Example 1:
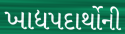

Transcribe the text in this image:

ખાદ્યપદાર્થોની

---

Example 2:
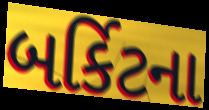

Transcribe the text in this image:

બર્કિટના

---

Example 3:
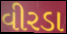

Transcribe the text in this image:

વીરડા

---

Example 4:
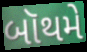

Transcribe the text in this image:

બૉથમે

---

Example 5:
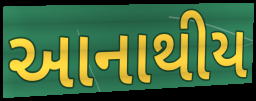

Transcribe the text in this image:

આનાથીય